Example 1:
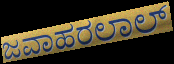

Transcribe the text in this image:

ಜವಾಹರಲಾಲ್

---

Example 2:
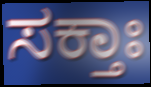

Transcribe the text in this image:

ಸಕ್ತಾಃ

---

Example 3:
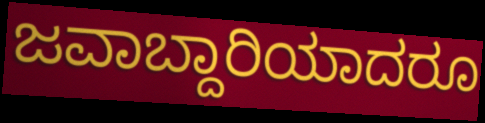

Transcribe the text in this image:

ಜವಾಬ್ದಾರಿಯಾದರೂ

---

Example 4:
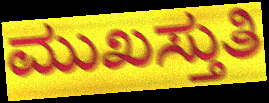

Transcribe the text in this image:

ಮುಖಸ್ತುತಿ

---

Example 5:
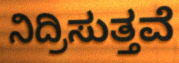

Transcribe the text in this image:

ನಿದ್ರಿಸುತ್ತವೆ